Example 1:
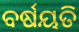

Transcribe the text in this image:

ବର୍ଷୟତି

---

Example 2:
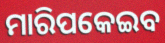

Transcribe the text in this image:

ମାରିପକେଇବ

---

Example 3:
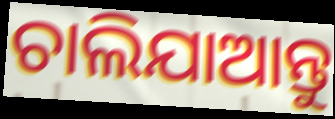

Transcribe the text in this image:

ଚାଲିଯାଆନ୍ତୁ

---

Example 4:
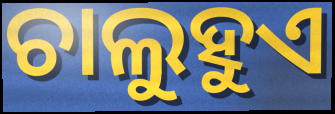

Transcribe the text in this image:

ଚାଲୁହୁଏ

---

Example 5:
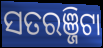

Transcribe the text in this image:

ସତରଞ୍ଜିଟା